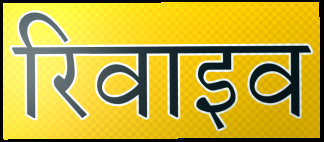
रिवाइव